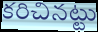
కరిచినట్టు